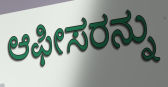
ಆಫೀಸರನ್ನು